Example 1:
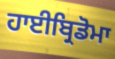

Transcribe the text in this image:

ਹਾਈਬ੍ਰਿਡੋਮਾ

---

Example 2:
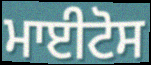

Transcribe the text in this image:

ਮਾਈਟੋਸ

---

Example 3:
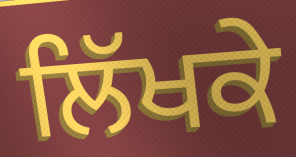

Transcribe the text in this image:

ਲਿੱਖਕੇ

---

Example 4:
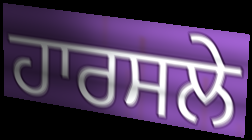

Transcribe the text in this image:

ਹਾਰਸਲੇ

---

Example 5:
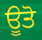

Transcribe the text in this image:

ਊਤੋ